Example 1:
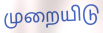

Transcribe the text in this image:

முறையிடு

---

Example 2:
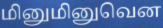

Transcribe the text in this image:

மினுமினுவென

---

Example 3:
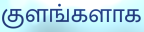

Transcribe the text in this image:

குளங்களாக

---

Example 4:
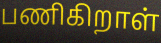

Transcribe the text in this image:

பணிகிறாள்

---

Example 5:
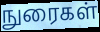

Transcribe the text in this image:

நுரைகள்